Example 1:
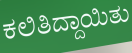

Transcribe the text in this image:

ಕಲಿತಿದ್ದಾಯಿತು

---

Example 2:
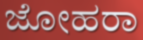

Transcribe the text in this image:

ಜೋಹರಾ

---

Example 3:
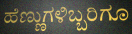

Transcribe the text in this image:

ಹೆಣ್ಣುಗಳಿಬ್ಬರಿಗೂ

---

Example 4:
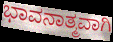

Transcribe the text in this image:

ಭಾವನಾತ್ಮವಾಗಿ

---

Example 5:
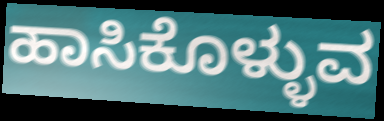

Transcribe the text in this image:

ಹಾಸಿಕೊಳ್ಳುವ